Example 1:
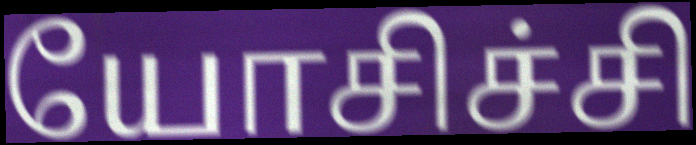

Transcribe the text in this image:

யோசிச்சி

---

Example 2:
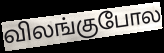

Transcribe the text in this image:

விலங்குபோல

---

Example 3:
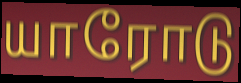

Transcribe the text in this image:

யாரோடு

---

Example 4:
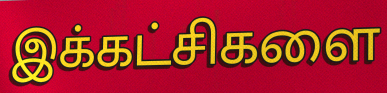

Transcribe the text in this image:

இக்கட்சிகளை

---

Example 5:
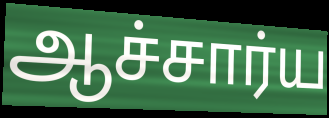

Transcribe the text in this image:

ஆச்சார்ய